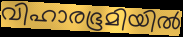
വിഹാരഭൂമിയിൽ